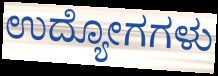
ಉದ್ಯೋಗಗಳು